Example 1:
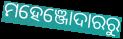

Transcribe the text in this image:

ମହେଞ୍ଜୋଦାରରୁ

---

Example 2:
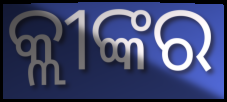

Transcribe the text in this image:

କ୍ଲୀଙ୍କର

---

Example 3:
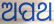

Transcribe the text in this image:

ଅପଥ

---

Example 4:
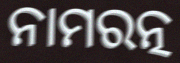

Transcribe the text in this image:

ନାମରତ୍ନ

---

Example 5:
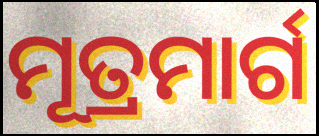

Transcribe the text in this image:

ମୂତ୍ରମାର୍ଗ